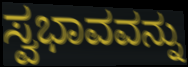
ಸ್ವಭಾವವನ್ನು